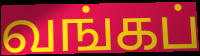
வங்கப்